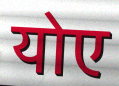
योए